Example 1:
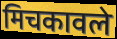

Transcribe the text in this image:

मिचकावले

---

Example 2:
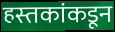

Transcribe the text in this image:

हस्तकांकडून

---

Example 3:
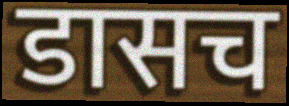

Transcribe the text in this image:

डासच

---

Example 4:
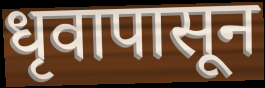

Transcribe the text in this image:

धृवापासून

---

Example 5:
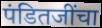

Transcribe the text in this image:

पंडितजींचा